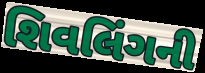
શિવલિંગની